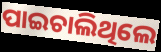
ପାଇଚାଲିଥିଲେ